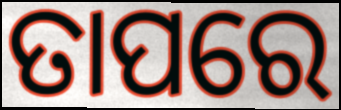
ତାପରେ